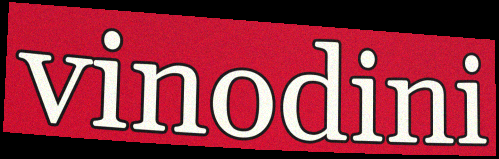
vinodini